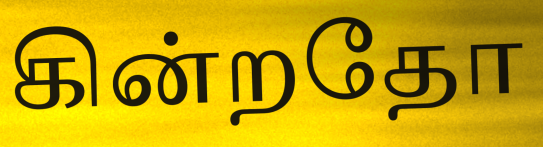
கின்றதோ